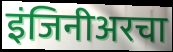
इंजिनीअरचा